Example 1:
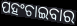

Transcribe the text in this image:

ପହଂଚାଇବାର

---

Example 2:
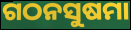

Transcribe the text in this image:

ଗଠନସୁଷମା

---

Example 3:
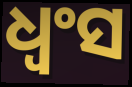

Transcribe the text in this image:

ଧ୍ଵଂସ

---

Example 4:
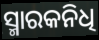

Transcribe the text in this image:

ସ୍ମାରକନିଧି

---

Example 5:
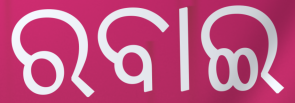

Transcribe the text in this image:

ରବାଇ